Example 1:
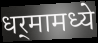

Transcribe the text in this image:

धर्मामध्ये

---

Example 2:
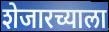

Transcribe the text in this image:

शेजारच्याला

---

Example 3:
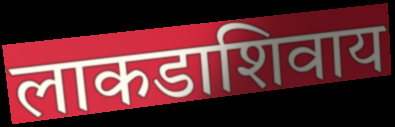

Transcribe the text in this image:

लाकडाशिवाय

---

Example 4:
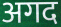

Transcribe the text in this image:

अगद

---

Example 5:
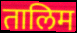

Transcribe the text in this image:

तालिम